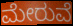
ಮೇರುವೆ